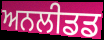
ਅਨਲੀਡਡ